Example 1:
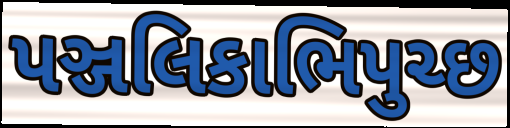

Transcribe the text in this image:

પઞ્જલિકાભિપુચ્છ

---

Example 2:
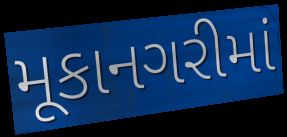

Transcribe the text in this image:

મૂકાનગરીમાં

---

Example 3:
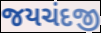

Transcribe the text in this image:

જયચંદજી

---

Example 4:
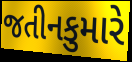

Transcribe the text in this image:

જતીનકુમારે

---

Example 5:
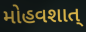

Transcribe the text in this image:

મોહવશાત્